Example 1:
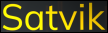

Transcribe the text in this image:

Satvik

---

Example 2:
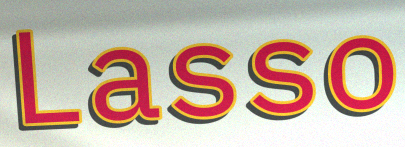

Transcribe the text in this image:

Lasso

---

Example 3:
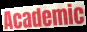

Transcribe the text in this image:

Academic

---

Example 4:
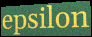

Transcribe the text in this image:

epsilon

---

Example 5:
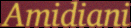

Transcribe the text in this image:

Amidiani